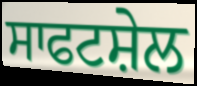
ਸਾਫਟਸ਼ੇਲ